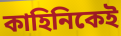
কাহিনিকেই